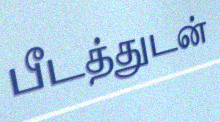
பீடத்துடன்